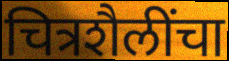
चित्रशैलींचा